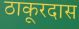
ठाकूरदास